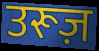
उरूज़